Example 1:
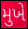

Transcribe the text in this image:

મુખે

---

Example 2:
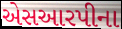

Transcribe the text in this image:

એસઆરપીના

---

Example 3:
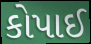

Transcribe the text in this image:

કોપાઈ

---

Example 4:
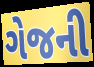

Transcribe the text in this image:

ગેજની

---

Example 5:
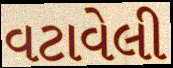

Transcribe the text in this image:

વટાવેલી